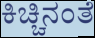
ಕಿಚ್ಚಿನಂತೆ